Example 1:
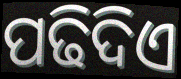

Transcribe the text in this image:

ପଢିଦିଏ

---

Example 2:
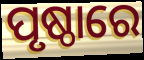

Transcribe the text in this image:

ପୃଷ୍ଠାରେ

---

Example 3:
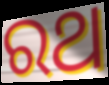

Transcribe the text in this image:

ରଥ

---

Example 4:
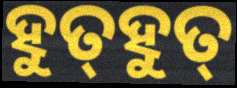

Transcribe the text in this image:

ହୁତ୍‌ହୁତ୍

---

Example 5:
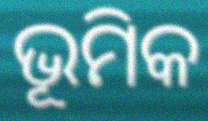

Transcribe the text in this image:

ଭୂମିକ